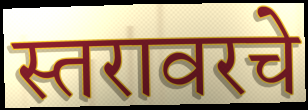
स्तरावरचे